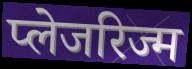
प्लेजरिज्म